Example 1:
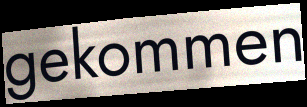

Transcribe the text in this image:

gekommen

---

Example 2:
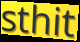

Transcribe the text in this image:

sthit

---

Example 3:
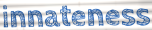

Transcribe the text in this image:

innateness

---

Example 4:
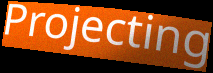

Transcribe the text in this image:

Projecting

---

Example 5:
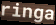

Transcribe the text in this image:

ringa